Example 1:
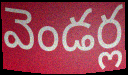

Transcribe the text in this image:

వెండర్ల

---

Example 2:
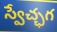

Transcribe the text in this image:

స్వేచ్ఛగ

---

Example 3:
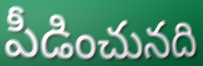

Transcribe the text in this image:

పీడించునది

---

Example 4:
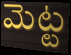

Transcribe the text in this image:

మెట్ట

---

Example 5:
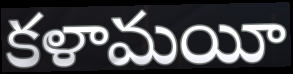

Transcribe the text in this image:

కళామయీ